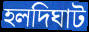
হলদিঘাট